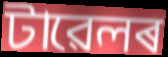
টাৱেলৰ